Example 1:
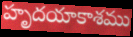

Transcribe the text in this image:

హృదయాకాశము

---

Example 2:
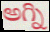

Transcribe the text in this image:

అగ్ని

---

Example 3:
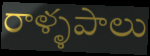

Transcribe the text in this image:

రాళ్ళపాలు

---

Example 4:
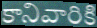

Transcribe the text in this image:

కానివారికి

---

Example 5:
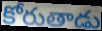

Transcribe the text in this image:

కోరుతాడు